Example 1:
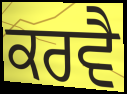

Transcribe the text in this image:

ਕਰਵੈ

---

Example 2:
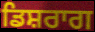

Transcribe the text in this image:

ਡਿਸ਼ਰਾਗ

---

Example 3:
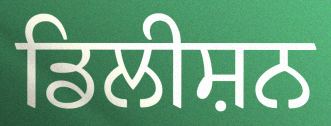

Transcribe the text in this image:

ਡਿਲੀਸ਼ਨ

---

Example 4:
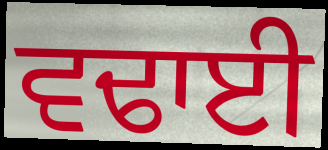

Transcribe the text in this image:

ਵਢਾਈ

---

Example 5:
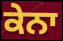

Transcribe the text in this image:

ਕੇਨਾ